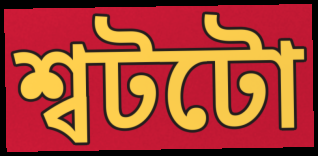
শ্বটটো